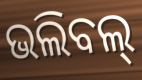
ଭଲିବଲ୍